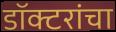
डॉक्टरांचा